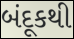
બંદૂકથી